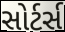
સોર્ટર્સ